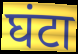
घंटा